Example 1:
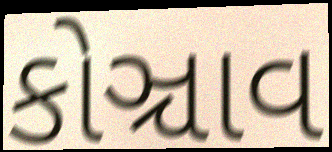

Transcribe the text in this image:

કોઞ્ચાવ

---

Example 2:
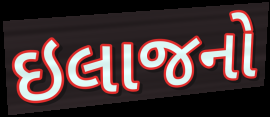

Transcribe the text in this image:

ઇલાજનો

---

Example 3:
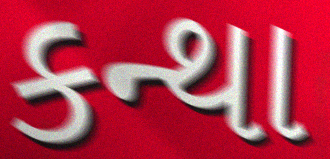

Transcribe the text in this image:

કન્થા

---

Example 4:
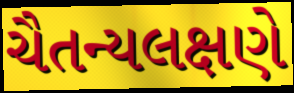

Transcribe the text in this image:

ચૈતન્યલક્ષણે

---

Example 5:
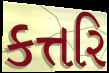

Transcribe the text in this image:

કત્તરિ